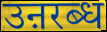
उऩरब्ध